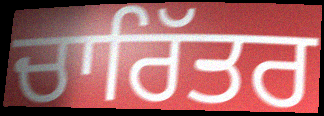
ਚਾਰਿੱਤਰ